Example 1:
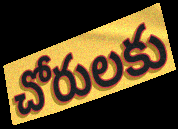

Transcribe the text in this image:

చోరులకు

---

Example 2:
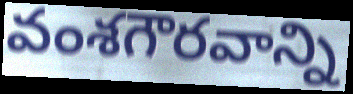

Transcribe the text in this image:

వంశగౌరవాన్ని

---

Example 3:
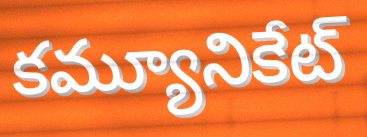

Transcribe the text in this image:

కమ్యూనికేట్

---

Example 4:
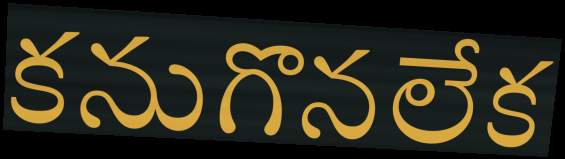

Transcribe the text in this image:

కనుగొనలేక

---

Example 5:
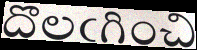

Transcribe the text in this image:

దొలఁగించి